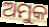
ଅମୁକ